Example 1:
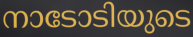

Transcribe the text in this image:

നാടോടിയുടെ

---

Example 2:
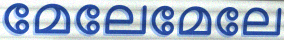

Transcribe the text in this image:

മേലേമേലേ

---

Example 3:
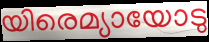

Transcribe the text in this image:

യിരെമ്യായോടു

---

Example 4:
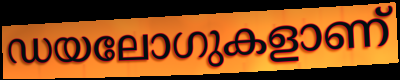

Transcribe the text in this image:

ഡയലോഗുകളാണ്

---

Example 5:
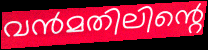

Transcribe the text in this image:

വൻമതിലിന്റെ